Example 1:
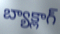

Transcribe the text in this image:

బ్యాక్లాగ్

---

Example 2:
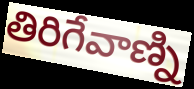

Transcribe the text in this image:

తిరిగేవాణ్ని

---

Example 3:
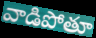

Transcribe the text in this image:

వాడిపోతూ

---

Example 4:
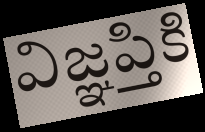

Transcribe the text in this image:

విజ్ఞప్తికి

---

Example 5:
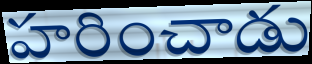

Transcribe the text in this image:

హరించాడు